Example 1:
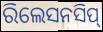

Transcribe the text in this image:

ରିଲେସନସିପ୍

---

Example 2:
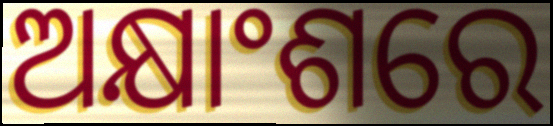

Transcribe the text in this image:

ଅକ୍ଷାଂଶରେ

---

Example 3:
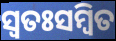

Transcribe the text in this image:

ସ୍ୱତଃସମ୍ବିତ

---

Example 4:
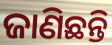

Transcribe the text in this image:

ଜାଣିଛନ୍ତି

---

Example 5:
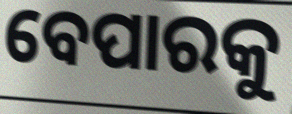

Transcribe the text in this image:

ବେପାରକୁ